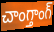
చాంగ్తాంగ్